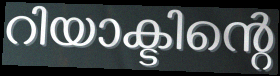
റിയാക്ടിന്റെ